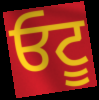
ਓਟੂ